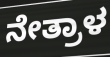
ನೇತ್ರಾಳ